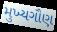
મુખ્યગૌણ